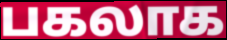
பகலாக